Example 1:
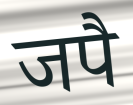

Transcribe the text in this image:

जपै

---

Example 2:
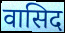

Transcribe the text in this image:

वासिद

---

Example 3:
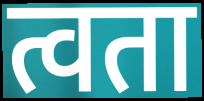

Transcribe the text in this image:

त्वता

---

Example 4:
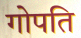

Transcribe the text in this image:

गोपति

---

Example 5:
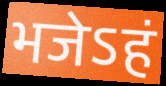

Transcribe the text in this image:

भजेऽहं